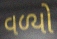
વળ્યો